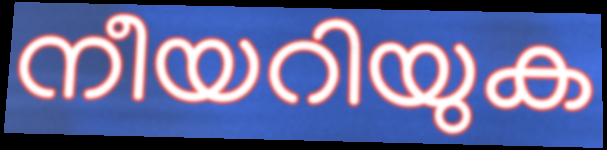
നീയറിയുക